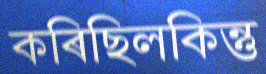
কৰিছিলকিন্তু